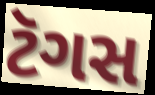
ટૅગસ